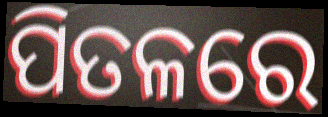
ପିତଳରେ